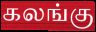
கலங்கு